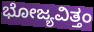
ಭೋಜ್ಯವಿತ್ತಂ